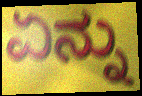
ಏನ್ನು